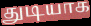
துடியாக